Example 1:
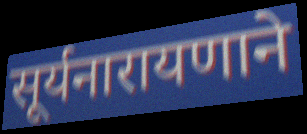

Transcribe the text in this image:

सूर्यनारायणाने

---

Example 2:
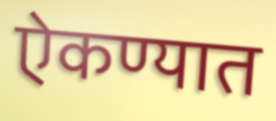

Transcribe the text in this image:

ऐकण्यात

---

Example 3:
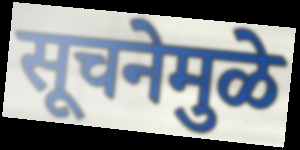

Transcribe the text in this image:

सूचनेमुळे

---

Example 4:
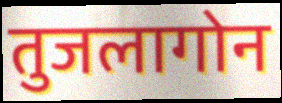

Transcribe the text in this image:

तुजलागोन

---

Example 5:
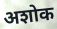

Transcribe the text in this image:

अशोक